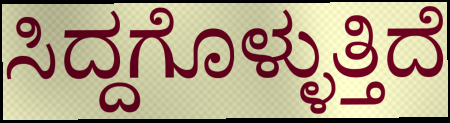
ಸಿದ್ದಗೊಳ್ಳುತ್ತಿದೆ